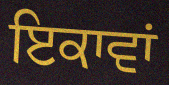
ਇਕਾਵਾਂ